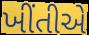
ખીંતીએ